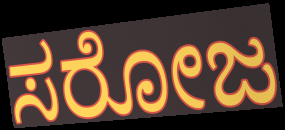
ಸರೋಜ